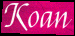
Koan